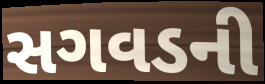
સગવડની